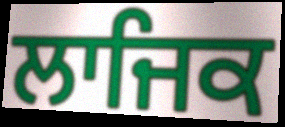
ਲਾਜਿਕ